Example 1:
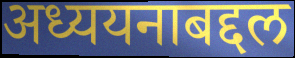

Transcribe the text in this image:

अध्ययनाबद्दल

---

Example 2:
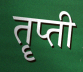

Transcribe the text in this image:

तॄप्ती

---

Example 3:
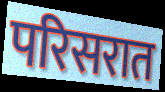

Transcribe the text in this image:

परिसरात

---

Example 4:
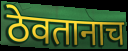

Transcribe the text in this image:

ठेवतानाच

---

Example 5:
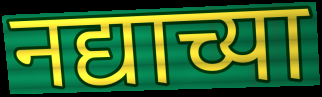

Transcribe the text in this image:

नद्याच्या